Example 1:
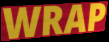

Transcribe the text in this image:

WRAP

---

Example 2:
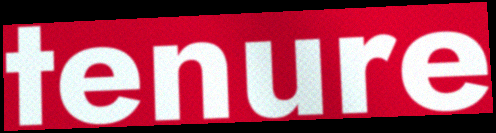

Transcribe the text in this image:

tenure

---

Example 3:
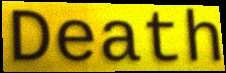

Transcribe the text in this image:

Death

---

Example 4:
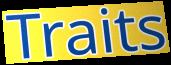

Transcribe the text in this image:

Traits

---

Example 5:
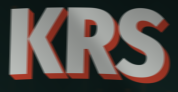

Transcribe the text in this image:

KRS